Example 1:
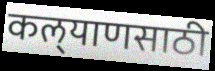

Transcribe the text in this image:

कल्याणसाठी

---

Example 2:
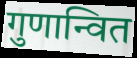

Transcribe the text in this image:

गुणान्वित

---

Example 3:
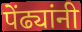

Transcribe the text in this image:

पेंढ्यांनी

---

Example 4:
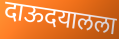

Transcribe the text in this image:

दाऊदयालला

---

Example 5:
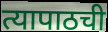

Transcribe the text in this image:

त्यापाठची